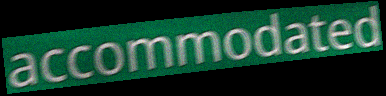
accommodated